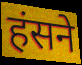
हंसने